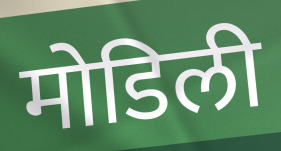
मोडिली